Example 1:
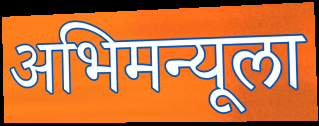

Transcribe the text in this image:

अभिमन्यूला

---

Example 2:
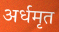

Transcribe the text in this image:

अर्धमृत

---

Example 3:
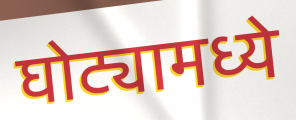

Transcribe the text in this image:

घोट्यामध्ये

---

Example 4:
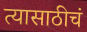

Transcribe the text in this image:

त्यासाठीचं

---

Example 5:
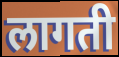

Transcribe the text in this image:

लागती